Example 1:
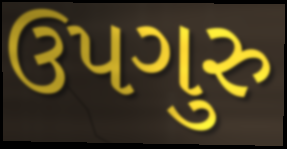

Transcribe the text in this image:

ઉપગુરુ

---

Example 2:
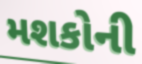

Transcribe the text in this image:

મશકોની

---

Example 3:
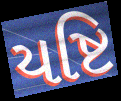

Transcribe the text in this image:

યષ્ટિ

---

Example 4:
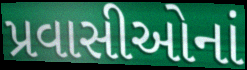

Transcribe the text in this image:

પ્રવાસીઓનાં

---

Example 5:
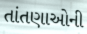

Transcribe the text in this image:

તાંતણાઓની